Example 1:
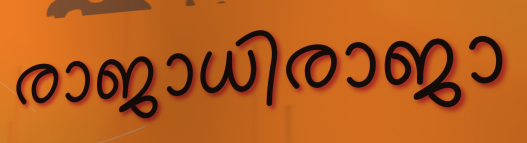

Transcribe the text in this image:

രാജാധിരാജാ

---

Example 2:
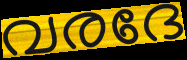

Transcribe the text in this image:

വരദേ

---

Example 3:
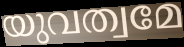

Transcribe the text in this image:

യുവത്വമേ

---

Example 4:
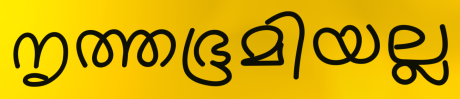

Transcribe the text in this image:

നൃത്തഭൂമിയല്ല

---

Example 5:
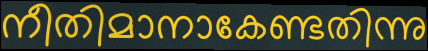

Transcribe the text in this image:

നീതിമാനാകേണ്ടതിന്നു